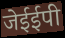
जेईईपी